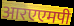
आरएएमपी